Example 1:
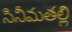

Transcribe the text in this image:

సినీమతల్లి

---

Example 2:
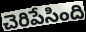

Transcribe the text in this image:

చెరిపేసింది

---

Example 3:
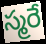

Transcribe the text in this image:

స్మరే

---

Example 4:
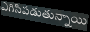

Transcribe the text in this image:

ఎగిసిపడుతున్నాయి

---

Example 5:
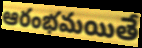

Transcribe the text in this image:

ఆరంభమయితే